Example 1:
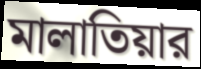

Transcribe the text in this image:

মালাতিয়ার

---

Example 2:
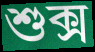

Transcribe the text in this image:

শুক্স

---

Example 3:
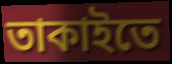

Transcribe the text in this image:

তাকাইতে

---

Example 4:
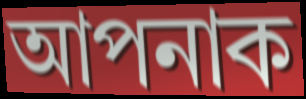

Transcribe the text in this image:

আপনাক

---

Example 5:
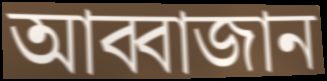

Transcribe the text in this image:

আব্বাজান